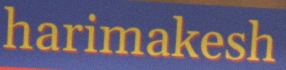
harimakesh